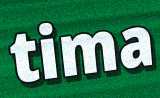
tima